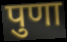
पुणा